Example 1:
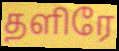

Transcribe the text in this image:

தளிரே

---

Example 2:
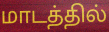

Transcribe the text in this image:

மாடத்தில்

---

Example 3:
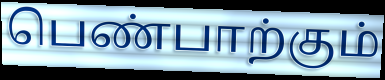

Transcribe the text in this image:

பெண்பாற்கும்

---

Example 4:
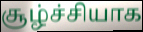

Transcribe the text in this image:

சூழ்ச்சியாக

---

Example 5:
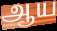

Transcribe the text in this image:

ஆய